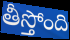
తీస్తోంది